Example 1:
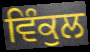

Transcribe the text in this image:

ਵਿੰਕੁਲ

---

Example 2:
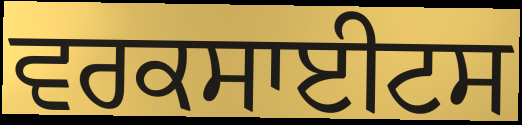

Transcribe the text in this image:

ਵਰਕਸਾਈਟਸ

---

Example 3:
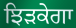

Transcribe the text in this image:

ਝਿੜਕੇਗਾ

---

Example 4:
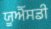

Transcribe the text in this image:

ਯੂਐੱਸਡੀ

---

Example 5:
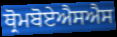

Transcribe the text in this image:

ਥ੍ਰੋਮਬੋਏਐਸਐਸ